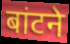
बांटने